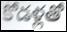
కోడళ్లతో